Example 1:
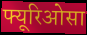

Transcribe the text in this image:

फ्यूरिओसा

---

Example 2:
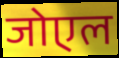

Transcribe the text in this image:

जोएल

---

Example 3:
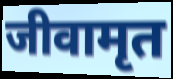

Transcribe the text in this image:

जीवामृत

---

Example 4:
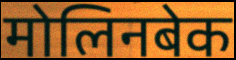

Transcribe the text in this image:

मोलिनबेक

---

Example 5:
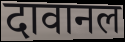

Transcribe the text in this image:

दावानल